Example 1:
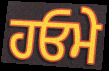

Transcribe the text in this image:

ਹਓਮੇ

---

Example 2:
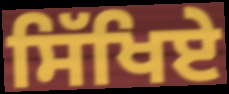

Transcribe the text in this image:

ਸਿੱਖਿਏ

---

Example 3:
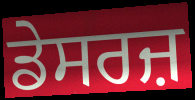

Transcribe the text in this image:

ਡੇਸਰਜ਼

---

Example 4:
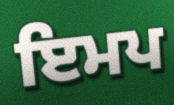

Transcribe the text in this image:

ਇਮਪ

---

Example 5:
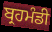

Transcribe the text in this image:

ਬ੍ਰਹਮੰਡੀ